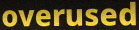
overused